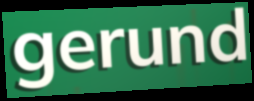
gerund